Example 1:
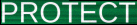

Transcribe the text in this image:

PROTECT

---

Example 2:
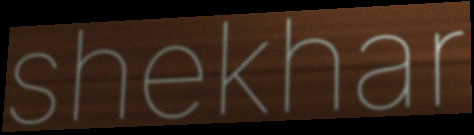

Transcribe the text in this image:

shekhar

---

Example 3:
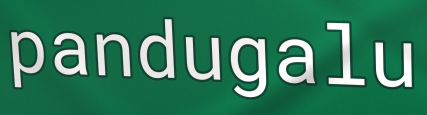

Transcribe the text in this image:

pandugalu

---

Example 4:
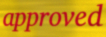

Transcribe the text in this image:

approved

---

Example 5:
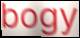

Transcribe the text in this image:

bogy